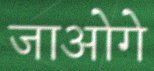
जाओगे